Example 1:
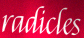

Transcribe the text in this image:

radicles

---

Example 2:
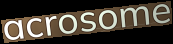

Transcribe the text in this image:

acrosome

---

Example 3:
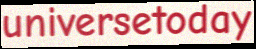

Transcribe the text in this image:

universetoday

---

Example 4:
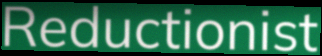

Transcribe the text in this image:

Reductionist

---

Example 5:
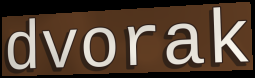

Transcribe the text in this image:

dvorak